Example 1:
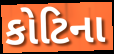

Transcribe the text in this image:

કોટિના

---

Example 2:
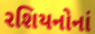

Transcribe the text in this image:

રશિયનોનાં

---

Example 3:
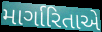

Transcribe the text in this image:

માર્ગારિતાએ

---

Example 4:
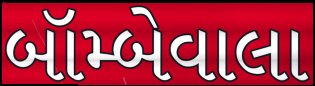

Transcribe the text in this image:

બૉમ્બેવાલા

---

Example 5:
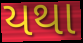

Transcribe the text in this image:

યથા